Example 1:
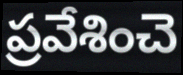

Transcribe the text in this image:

ప్రవేశించె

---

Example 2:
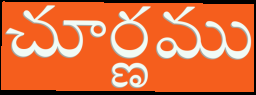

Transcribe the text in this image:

చూర్ణము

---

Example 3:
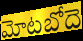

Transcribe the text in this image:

మోటబోదె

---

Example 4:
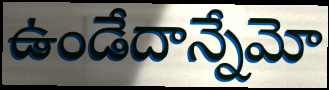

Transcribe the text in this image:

ఉండేదాన్నేమో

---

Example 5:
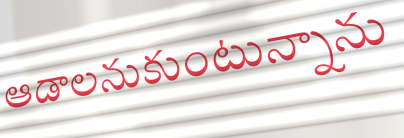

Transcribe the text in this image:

ఆడాలనుకుంటున్నాను